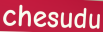
chesudu